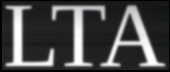
LTA